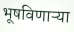
भूषविणाऱ्या